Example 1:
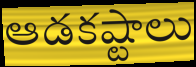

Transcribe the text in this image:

ఆడకష్టాలు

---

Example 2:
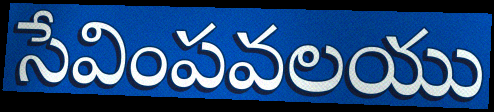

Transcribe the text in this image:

సేవింపవలయు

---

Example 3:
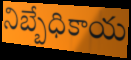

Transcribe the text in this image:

నిబ్బేధికాయ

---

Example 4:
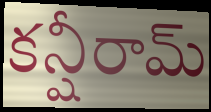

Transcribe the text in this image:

కన్షీరామ్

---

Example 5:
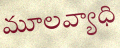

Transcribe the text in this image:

మూలవ్యాధి